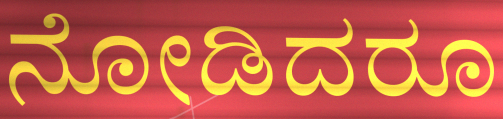
ನೋಡಿದರೂ